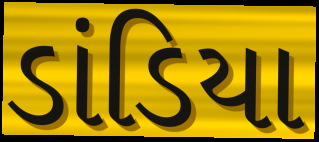
ડાંડિયા